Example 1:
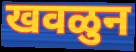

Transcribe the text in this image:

खवळुन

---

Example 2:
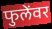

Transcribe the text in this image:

फुलेंवर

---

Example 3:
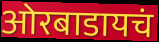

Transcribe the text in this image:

ओरबाडायचं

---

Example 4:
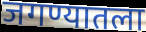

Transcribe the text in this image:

जगण्यातला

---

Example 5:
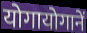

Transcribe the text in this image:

योगायोगानें